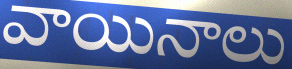
వాయినాలు